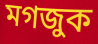
মগজুক